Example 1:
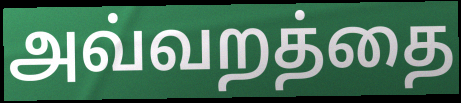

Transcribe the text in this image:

அவ்வறத்தை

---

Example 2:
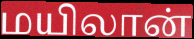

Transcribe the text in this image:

மயிலான்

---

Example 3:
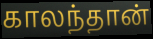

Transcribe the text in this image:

காலந்தான்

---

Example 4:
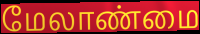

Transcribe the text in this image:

மேலாண்மை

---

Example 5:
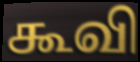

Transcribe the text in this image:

கூவி